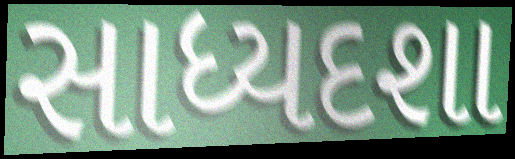
સાધ્યદશા